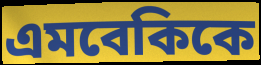
এমবেকিকে